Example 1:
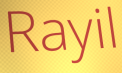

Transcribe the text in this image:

Rayil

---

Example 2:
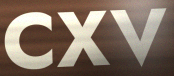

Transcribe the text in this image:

CXV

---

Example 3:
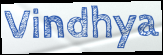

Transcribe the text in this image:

Vindhya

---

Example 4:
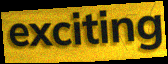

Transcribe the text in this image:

exciting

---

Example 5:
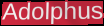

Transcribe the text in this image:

Adolphus